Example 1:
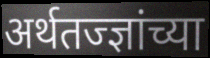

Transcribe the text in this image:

अर्थतज्ज्ञांच्या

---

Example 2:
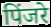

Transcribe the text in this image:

पिंजरे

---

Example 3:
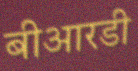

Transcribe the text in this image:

बीआरडी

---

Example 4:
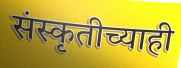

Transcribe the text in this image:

संस्कृतीच्याही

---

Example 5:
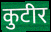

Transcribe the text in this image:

कुटीर